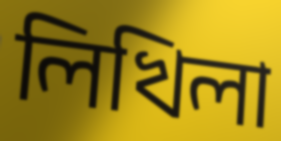
লিখিলা